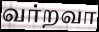
வர்றவா